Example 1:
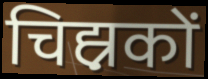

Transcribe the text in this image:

चिह्नकों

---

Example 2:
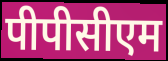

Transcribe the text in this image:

पीपीसीएम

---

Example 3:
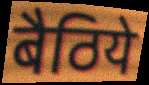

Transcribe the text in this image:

बैठिये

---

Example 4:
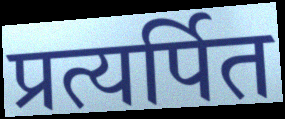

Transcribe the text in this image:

प्रत्यर्पित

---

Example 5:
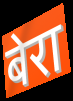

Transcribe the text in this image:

बेरा